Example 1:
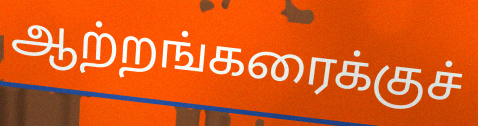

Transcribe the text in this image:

ஆற்றங்கரைக்குச்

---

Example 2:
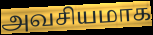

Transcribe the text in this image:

அவசியமாக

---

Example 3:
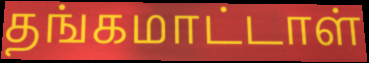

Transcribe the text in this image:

தங்கமாட்டாள்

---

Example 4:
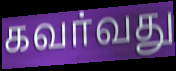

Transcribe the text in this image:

கவர்வது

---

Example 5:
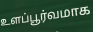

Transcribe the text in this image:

உளப்பூர்வமாக